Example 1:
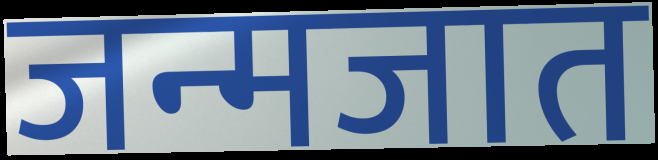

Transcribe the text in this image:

जन्मजात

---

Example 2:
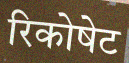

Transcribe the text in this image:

रिकोषेट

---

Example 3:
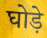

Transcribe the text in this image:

घोड़े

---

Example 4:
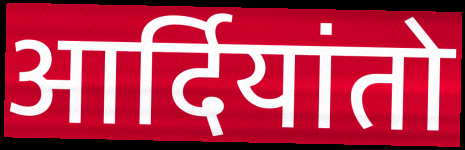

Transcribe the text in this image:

आर्दियांतो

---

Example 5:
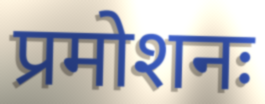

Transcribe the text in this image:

प्रमोशनः